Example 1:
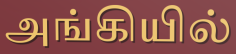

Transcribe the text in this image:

அங்கியில்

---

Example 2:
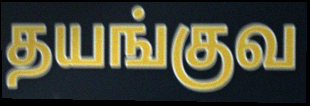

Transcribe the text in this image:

தயங்குவ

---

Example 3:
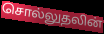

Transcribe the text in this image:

சொல்லுதலின்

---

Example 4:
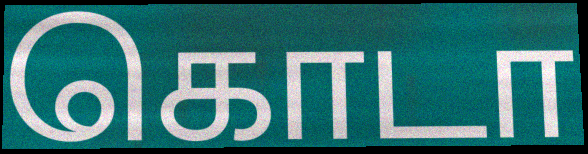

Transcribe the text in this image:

கொடா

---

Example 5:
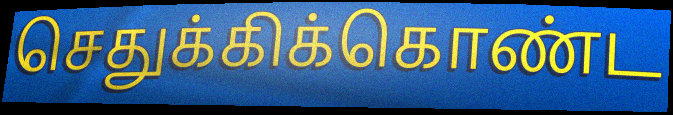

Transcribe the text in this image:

செதுக்கிக்கொண்ட